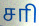
சரி